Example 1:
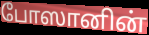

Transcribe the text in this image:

போஸானின்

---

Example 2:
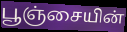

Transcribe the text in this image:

பூஞ்சையின்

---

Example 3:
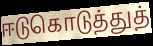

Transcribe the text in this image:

ஈடுகொடுத்துத்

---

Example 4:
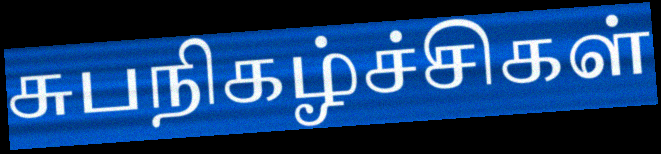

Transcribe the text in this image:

சுபநிகழ்ச்சிகள்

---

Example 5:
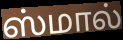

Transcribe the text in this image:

ஸ்மால்